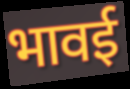
भावई